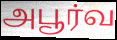
அபூர்வ